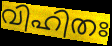
വിഹിതഃ